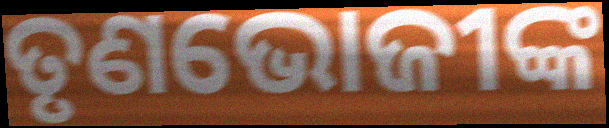
ତୃଣଭୋଜୀଙ୍କ